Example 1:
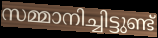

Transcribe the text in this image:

സമ്മാനിച്ചിട്ടുണ്ട്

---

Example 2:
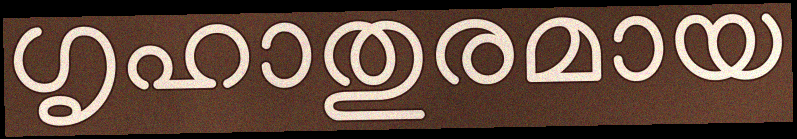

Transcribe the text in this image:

ഗൃഹാതുരമായ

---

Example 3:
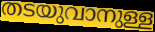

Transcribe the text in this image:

തടയുവാനുള്ള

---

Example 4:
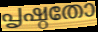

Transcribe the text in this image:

പൃഷ്ഠതോ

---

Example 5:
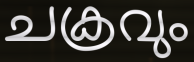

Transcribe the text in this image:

ചക്രവും